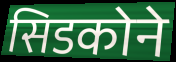
सिडकोने